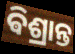
ଵିଶ୍ରାନ୍ତ